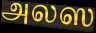
அலஸ